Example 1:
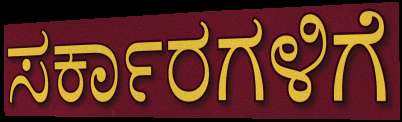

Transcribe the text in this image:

ಸರ್ಕಾರಗಳಿಗೆ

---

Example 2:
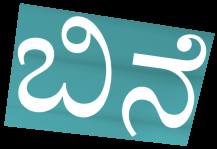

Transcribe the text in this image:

ಬಿನೆ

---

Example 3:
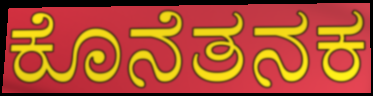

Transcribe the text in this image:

ಕೊನೆತನಕ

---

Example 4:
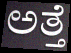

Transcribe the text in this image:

ಅತ್ತೆ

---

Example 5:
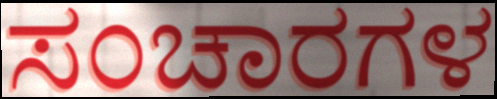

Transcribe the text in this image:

ಸಂಚಾರಗಳ